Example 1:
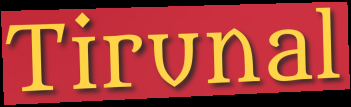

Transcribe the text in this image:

Tirunal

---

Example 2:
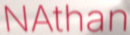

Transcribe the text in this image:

NAthan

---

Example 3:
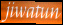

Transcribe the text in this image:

jiwatun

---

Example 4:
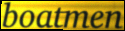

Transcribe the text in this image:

boatmen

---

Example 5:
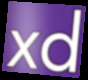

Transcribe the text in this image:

xd